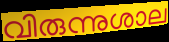
വിരുന്നുശാല